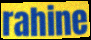
rahine